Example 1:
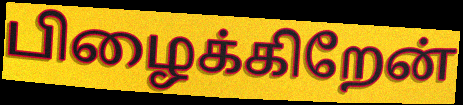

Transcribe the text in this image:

பிழைக்கிறேன்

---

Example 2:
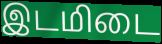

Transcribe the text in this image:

இடமிடை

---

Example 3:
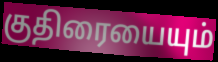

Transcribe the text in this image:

குதிரையையும்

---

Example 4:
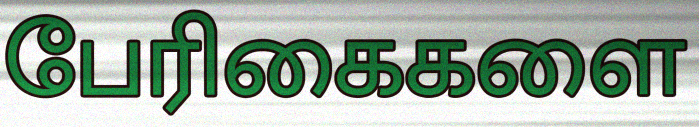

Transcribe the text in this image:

பேரிகைகளை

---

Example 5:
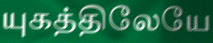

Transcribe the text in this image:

யுகத்திலேயே